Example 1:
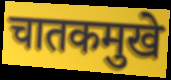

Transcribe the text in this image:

चातकमुखे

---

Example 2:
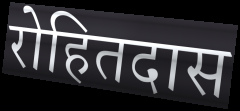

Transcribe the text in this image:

रोहितदास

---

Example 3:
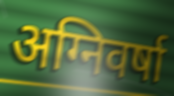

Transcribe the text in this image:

अग्निवर्षा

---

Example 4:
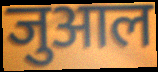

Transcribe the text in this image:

जुआल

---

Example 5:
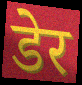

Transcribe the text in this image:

डेर